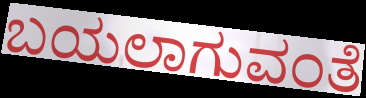
ಬಯಲಾಗುವಂತೆ